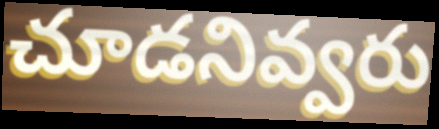
చూడనివ్వరు